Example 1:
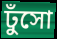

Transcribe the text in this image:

ঢুঁসো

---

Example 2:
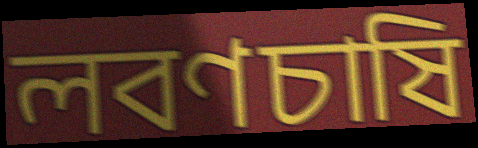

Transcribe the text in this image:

লবণচাষি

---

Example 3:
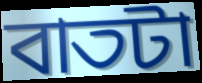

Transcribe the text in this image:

বাতটা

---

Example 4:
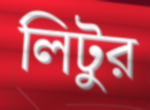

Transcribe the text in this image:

লিটুর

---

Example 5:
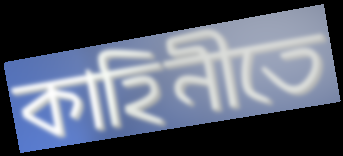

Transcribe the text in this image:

কাহিনীতে